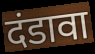
दंडावा